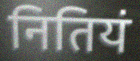
नितियं